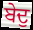
ਬੇਦੁ